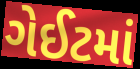
ગેઈટમાં